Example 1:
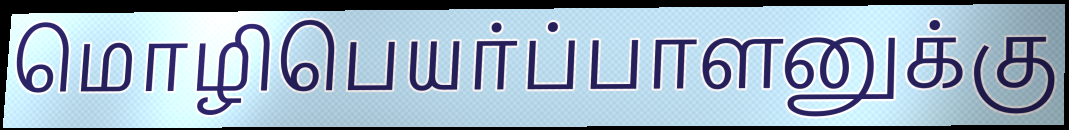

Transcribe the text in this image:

மொழிபெயர்ப்பாளனுக்கு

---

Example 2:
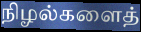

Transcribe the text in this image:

நிழல்களைத்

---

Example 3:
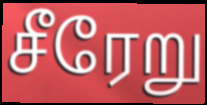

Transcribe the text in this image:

சீரேறு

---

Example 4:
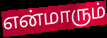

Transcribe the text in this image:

என்மாரும்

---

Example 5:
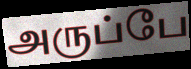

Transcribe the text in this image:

அருப்பே